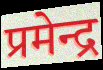
प्रमेन्द्र